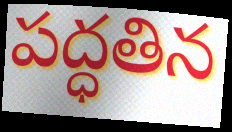
పద్ధతిన